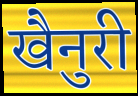
खैनुरी